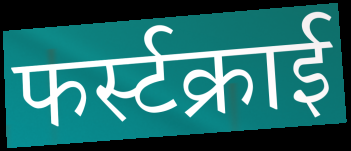
फर्स्टक्राई